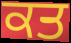
ਕਤ